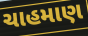
ચાહમાણ